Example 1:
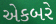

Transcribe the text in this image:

એકબરે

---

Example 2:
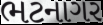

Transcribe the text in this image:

ભટનાગર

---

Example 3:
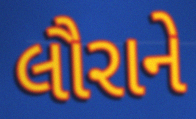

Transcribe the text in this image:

લૌરાને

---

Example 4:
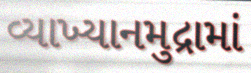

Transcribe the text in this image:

વ્યાખ્યાનમુદ્રામાં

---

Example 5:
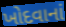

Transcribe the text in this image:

ખોદવાનાં